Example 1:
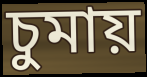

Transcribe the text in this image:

চুমায়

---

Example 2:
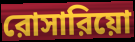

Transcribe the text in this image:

রোসারিয়ো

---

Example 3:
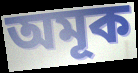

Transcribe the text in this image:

অমূক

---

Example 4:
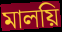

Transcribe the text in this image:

মালয়ি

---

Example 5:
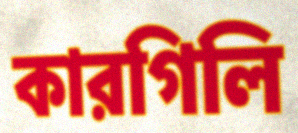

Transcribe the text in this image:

কারগিলি